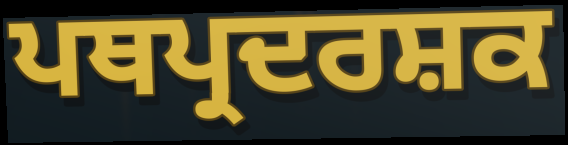
ਪਥਪ੍ਰਦਰਸ਼ਕ